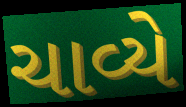
ચાવ્યે